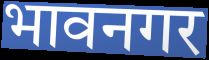
भावनगर